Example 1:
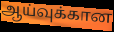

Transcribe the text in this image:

ஆய்வுக்கான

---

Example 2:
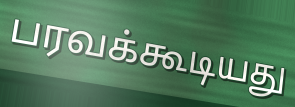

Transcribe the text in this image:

பரவக்கூடியது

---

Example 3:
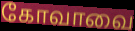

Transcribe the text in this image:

கோவாவை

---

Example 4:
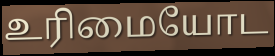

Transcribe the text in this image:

உரிமையோட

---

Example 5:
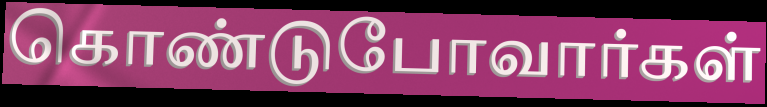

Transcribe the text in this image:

கொண்டுபோவார்கள்